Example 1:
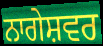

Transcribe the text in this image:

ਨਾਗੇਸ਼ਵਰ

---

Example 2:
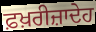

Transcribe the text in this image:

ਫ਼ਖ਼ਰੀਜ਼ਾਦੇਹ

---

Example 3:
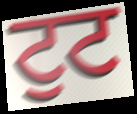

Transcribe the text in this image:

ਟੁਟ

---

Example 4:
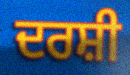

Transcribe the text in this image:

ਦਰਸ਼ੀ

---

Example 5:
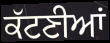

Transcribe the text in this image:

ਕੱਟਣੀਆਂ